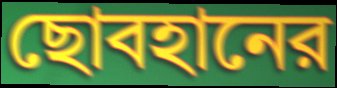
ছোবহানের